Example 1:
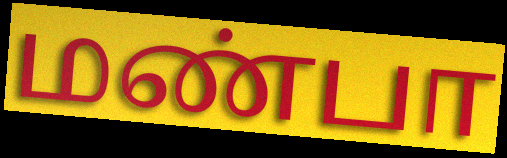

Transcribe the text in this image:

மண்பா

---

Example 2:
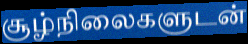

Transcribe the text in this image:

சூழ்நிலைகளுடன்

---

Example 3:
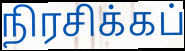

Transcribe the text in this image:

நிரசிக்கப்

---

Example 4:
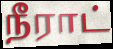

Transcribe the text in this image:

நீராட்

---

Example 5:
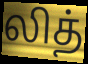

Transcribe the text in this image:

லித்